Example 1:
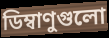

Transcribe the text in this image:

ডিম্বাণুগুলো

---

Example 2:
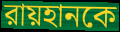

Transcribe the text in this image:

রায়হানকে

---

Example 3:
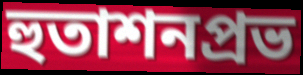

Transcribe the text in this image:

হুতাশনপ্রভ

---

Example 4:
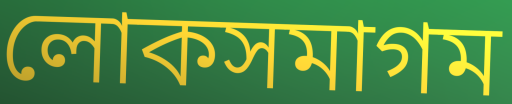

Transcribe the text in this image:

লোকসমাগম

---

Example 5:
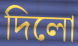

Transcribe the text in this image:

দিলো